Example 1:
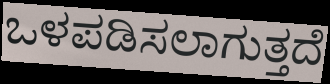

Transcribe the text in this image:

ಒಳಪಡಿಸಲಾಗುತ್ತದೆ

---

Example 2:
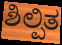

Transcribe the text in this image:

ಶಿಲ್ಪಿತ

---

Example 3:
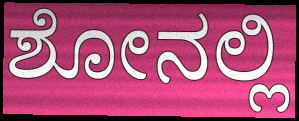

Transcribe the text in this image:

ಶೋನಲ್ಲಿ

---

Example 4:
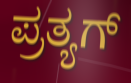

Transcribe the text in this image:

ಪ್ರತ್ಯಗ್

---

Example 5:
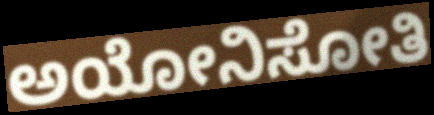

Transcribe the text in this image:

ಅಯೋನಿಸೋತಿ